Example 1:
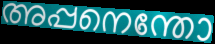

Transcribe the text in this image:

അപ്പനെന്തോ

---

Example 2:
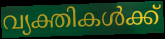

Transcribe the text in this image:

വ്യക്തികൾക്ക്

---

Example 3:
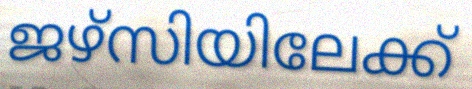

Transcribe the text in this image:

ജഴ്സിയിലേക്ക്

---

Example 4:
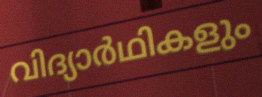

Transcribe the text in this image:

വിദ്യാർഥികളും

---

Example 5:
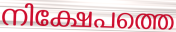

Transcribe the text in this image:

നിക്ഷേപത്തെ